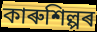
কাৰুশিল্পৰ